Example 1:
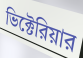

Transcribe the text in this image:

ভিক্টেরিয়ার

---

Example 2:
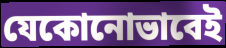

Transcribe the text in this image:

যেকোনোভাবেই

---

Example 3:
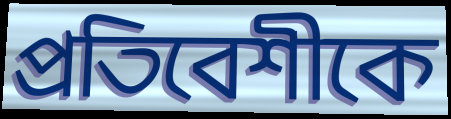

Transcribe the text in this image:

প্রতিবেশীকে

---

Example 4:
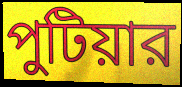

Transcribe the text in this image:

পুটিয়ার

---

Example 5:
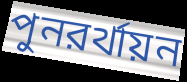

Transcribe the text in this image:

পুনরর্থায়ন